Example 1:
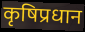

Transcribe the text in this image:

कृषिप्रधान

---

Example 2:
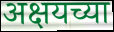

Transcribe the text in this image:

अक्षयच्या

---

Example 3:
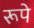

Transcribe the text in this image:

रूपे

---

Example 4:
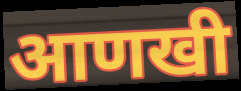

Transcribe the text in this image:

आणखी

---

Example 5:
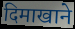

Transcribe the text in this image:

दिमाखाने